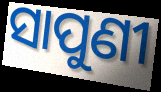
ସାପୁଣୀ